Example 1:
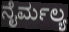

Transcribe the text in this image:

ನೈರ್ಮಲ್ಯ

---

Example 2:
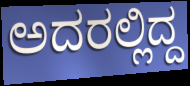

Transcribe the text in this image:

ಅದರಲ್ಲಿದ್ದ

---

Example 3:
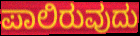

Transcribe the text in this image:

ಪಾಲಿರುವುದು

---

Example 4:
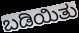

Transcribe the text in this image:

ಬಡಿಯಿತು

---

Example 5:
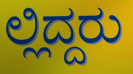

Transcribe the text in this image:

ಲ್ಲಿದ್ದರು